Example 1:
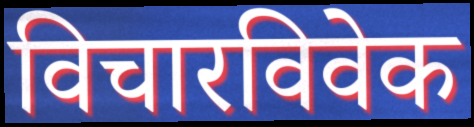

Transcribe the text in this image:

विचारविवेक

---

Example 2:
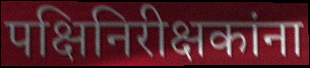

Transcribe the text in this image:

पक्षिनिरीक्षकांना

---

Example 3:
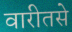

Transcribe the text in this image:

वारीतसे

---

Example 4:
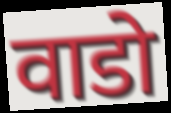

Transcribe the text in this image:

वाडो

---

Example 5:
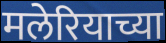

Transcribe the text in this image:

मलेरियाच्या